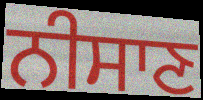
ਨੀਸਾਣ